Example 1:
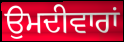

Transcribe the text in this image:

ਉਮਦੀਵਾਰਾਂ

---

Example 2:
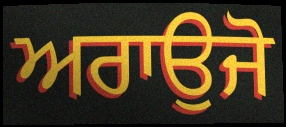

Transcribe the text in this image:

ਅਰਾਉਜੋ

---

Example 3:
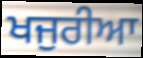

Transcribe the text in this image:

ਖਜੁਰੀਆ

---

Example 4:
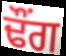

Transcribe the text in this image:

ਢੌਂਗ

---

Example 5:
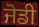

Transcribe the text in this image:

ਜੋਡੀ